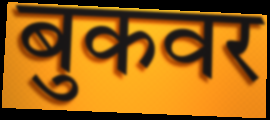
बुकवर